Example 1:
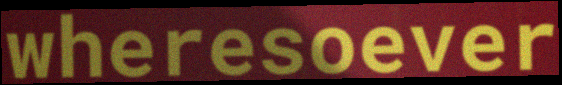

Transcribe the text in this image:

wheresoever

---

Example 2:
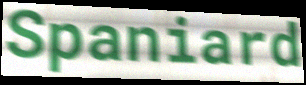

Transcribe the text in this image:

Spaniard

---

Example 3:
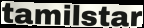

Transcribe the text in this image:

tamilstar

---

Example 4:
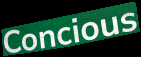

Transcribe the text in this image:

Concious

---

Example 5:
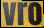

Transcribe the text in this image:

vro